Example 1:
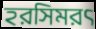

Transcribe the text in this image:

হরসিমরৎ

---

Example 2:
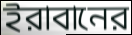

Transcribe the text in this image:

ইরাবানের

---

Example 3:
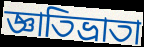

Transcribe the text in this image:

জ্ঞাতিভ্রাতা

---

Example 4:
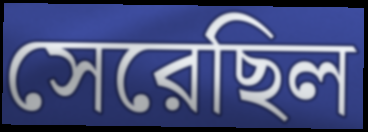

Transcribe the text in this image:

সেরেছিল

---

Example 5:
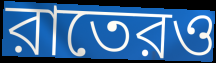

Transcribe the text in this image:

রাতেরও